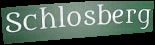
Schlosberg